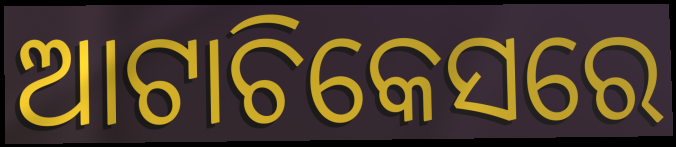
ଆଟାଚିକେସରେ